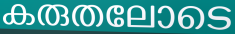
കരുതലോടെ